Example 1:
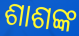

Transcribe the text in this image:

ଶାଶଙ୍କ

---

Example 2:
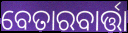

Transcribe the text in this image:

ବେତାରବାର୍ତ୍ତା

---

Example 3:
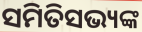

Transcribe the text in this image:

ସମିତିସଭ୍ୟଙ୍କ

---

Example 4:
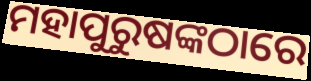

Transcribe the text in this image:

ମହାପୁରୁଷଙ୍କଠାରେ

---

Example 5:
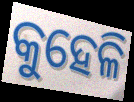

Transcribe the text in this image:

କୁହେଳି